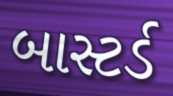
બાસ્ટર્ડ